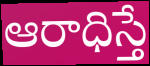
ఆరాధిస్తే